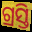
ଗ୍ରସ୍ତି